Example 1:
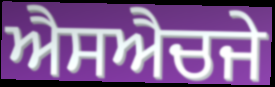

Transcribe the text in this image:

ਐਸਐਚਜੇ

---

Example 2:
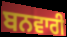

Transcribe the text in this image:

ਬਨਵਾਰੀ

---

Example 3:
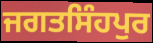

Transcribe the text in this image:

ਜਗਤਸਿੰਹਪੁਰ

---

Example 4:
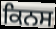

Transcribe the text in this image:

ਕਿਨਸ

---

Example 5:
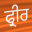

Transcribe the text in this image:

ਫ੍ਰੀਰ